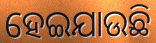
ହେଇଯାଉଛି